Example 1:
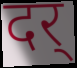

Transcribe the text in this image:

दर्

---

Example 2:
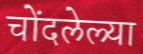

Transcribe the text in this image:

चोंदलेल्या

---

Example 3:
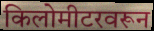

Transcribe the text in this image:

किलोमीटरवरून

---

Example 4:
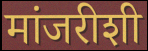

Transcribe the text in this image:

मांजरीशी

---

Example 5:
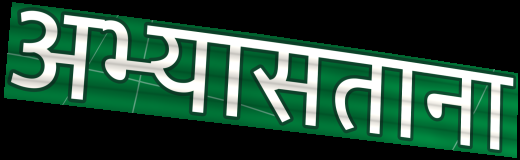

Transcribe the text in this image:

अभ्यासताना